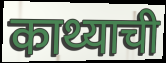
काथ्याची